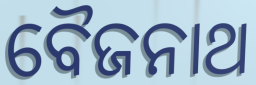
ବୈଜନାଥ